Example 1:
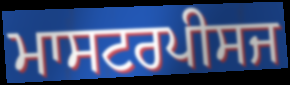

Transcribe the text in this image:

ਮਾਸਟਰਪੀਸਜ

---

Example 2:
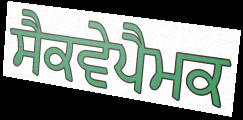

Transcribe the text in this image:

ਸੈਕਵੇਪੈਮਕ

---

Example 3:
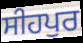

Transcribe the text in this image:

ਸੀਹਪੁਰ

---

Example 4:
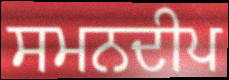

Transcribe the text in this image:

ਸਮਨਦੀਪ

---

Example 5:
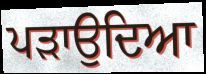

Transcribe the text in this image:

ਪੜਾਉਦਿਆ